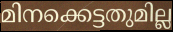
മിനക്കെട്ടതുമില്ല